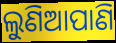
ଲୁଣିଆପାଣି